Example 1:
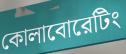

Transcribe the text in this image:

কোলাবোরেটিং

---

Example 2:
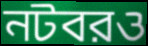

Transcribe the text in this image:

নটবরও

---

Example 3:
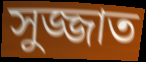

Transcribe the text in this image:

সুজ্জাত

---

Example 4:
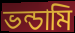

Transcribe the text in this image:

ভন্ডামি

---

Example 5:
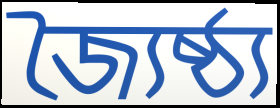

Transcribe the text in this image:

জ্যৈষ্ঠ্য